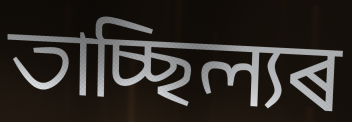
তাচ্ছিল্যৰ